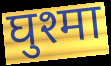
घुश्मा